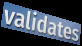
validates